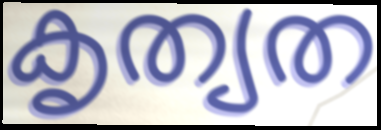
കൃത്യത